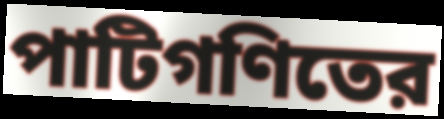
পাটিগণিতের